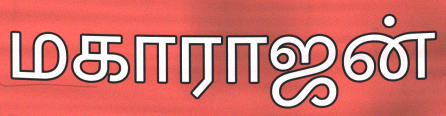
மகாராஜன்